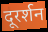
दूरर्शन